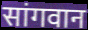
सांगवान